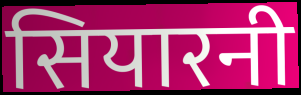
सियारनी